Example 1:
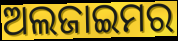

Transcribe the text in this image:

ଅଲଜାଇମର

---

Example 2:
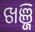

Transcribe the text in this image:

ଖଞ୍ଜି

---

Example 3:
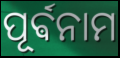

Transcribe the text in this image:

ପୂର୍ଵନାମ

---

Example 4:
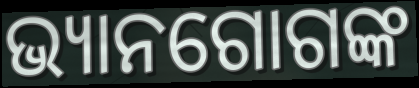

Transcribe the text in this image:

ଭ୍ୟାନଗୋଗଙ୍କ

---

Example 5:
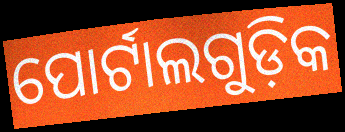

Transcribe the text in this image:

ପୋର୍ଟାଲଗୁଡ଼ିକ